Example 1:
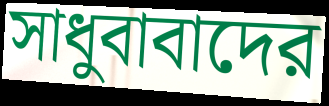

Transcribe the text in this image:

সাধুবাবাদের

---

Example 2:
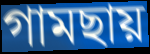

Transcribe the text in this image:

গামছায়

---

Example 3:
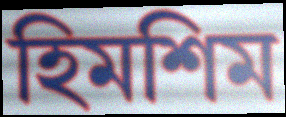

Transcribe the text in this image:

হিমশিম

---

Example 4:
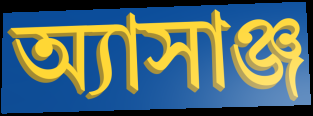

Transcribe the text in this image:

অ্যাসাঞ্জ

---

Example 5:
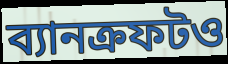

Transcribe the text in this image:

ব্যানক্রফটও